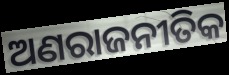
ଅଣରାଜନୀତିକ